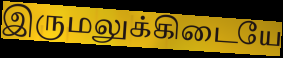
இருமலுக்கிடையே